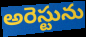
అరెస్టును